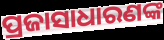
ପ୍ରଜାସାଧାରଣଙ୍କ